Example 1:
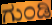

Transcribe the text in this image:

ಗುಂಡಿ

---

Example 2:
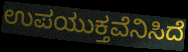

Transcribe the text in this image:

ಉಪಯುಕ್ತವೆನಿಸಿದೆ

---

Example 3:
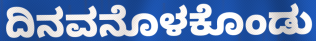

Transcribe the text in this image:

ದಿನವನೊಳಕೊಂಡು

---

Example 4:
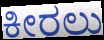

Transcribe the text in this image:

ಕೀರಲು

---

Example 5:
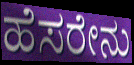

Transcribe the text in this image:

ಹೆಸರೇನು